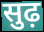
सुढ़